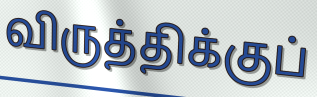
விருத்திக்குப்